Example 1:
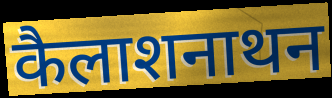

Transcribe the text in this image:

कैलाशनाथन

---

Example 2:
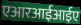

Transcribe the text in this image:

एआरआईआईए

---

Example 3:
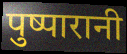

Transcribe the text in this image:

पुष्पारानी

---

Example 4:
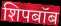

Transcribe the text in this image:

शिपबॉब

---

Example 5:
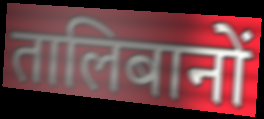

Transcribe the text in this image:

तालिबानों